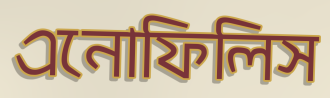
এনোফিলিস